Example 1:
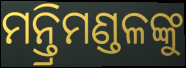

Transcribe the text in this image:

ମନ୍ତ୍ରିମଣ୍ଡଳଙ୍କୁ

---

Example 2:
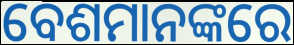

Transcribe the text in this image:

ବେଶମାନଙ୍କରେ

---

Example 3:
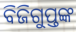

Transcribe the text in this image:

ବିଜିଗୁପ୍ତଙ୍କ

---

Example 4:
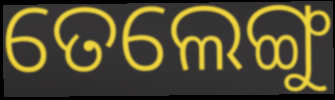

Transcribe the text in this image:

ତେଲେଙ୍ଗୁ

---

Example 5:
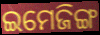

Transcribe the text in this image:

ଇମେଜିଙ୍ଗ